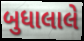
બુધાલાલે